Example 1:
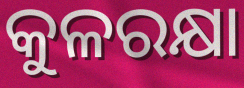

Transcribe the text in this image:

କୁଳରକ୍ଷା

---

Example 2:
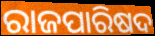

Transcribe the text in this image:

ରାଜପାରିଷଦ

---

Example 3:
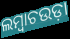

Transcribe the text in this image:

ଲମ୍ୱାଚଉଡ଼ା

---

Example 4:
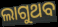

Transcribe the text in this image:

ଲାଗୁଥବ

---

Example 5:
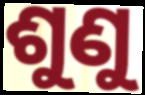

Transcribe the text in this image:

ଶୁଣୁ